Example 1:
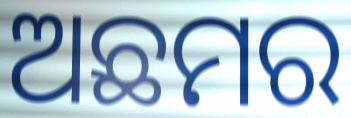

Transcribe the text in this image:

ଅଛମର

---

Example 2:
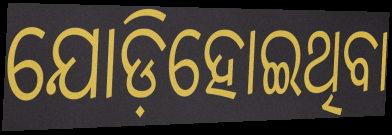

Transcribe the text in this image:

ଯୋଡ଼ିହୋଇଥିବା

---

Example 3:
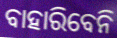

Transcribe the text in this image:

ବାହାରିବେନି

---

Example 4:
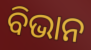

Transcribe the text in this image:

ବିଭାନ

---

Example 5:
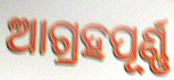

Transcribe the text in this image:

ଆଗ୍ରହପୂର୍ଣ୍ଣ